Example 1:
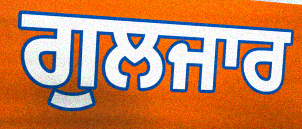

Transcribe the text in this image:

ਗੁਲਜਾਰ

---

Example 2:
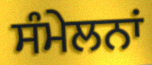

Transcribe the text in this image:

ਸੰਮੇਲਨਾਂ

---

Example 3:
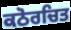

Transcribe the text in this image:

ਕਠੋਰਚਿਤ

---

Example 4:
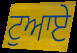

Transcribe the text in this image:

ਟੁਆਏ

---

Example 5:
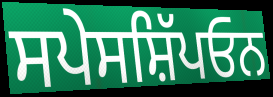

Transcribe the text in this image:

ਸਪੇਸਸ਼ਿੱਪਓਨ